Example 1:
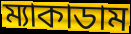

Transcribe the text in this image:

ম্যাকাডাম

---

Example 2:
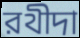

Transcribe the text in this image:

রথীদা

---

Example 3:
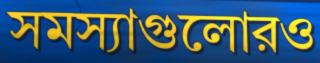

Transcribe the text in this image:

সমস্যাগুলোরও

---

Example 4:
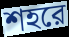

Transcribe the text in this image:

শহরে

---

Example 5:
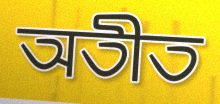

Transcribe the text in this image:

অতীত